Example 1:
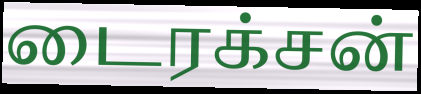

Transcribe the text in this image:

டைரக்சன்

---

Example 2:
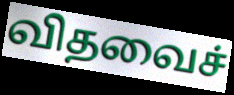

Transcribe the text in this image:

விதவைச்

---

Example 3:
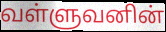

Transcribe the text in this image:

வள்ளுவனின்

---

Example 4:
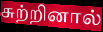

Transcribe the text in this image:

சுற்றினால்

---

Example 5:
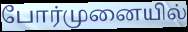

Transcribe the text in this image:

போர்முனையில்